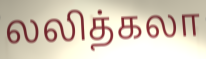
லலித்கலா